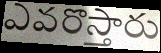
ఎవరొస్తారు